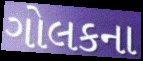
ગોલકના